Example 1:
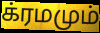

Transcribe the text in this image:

க்ரமமும்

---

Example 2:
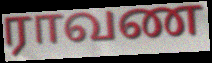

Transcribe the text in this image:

ராவண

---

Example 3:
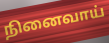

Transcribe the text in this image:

நினைவாய்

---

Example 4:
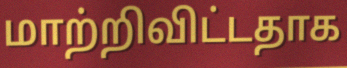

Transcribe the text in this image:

மாற்றிவிட்டதாக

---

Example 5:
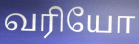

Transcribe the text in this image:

வரியோ